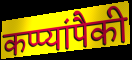
कप्प्यांपैकी